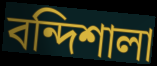
বন্দিশালা